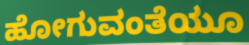
ಹೋಗುವಂತೆಯೂ